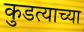
कुडत्याच्या